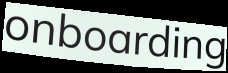
onboarding